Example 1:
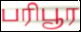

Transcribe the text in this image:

பரிபூர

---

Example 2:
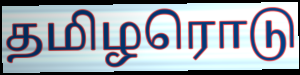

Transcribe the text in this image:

தமிழரொடு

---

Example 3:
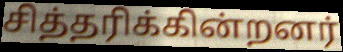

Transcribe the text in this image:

சித்தரிக்கின்றனர்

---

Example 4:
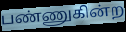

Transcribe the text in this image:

பண்ணுகின்ற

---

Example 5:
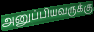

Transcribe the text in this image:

அனுப்பியவருக்கு